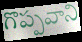
గొప్పవాని